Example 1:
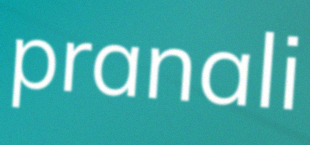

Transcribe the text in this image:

pranali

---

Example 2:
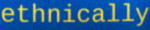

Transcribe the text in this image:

ethnically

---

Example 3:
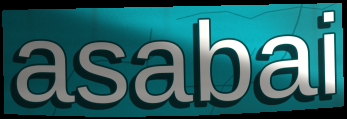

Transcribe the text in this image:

asabai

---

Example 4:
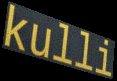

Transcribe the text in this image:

kulli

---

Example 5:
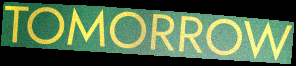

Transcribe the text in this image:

TOMORROW